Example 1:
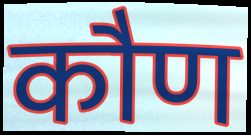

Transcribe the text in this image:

कौण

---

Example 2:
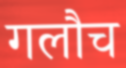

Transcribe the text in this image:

गलौच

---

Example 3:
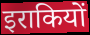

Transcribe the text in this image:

इराकियों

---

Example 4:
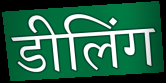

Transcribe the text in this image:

डीलिंग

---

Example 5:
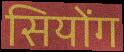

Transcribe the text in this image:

सियोंग